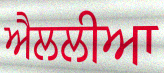
ਐਲਲੀਆ